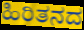
ಹಿರಿತನದ